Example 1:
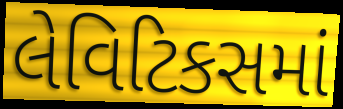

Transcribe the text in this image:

લેવિટિકસમાં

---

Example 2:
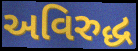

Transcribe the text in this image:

અવિરુદ્ધ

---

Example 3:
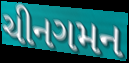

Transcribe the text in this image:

ચીનગમન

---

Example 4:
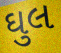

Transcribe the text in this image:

ઘુલ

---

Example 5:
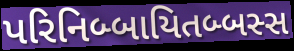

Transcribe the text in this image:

પરિનિબ્બાયિતબ્બસ્સ